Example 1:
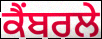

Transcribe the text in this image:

ਕੈਂਬਰਲੇ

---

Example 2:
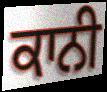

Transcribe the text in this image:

ਕਾਨੀ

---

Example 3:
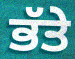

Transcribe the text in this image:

ਭੱਤੇ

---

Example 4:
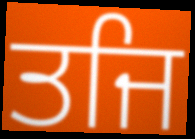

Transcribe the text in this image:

ਤਜਿ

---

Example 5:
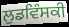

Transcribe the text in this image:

ਲੁਡਵਿੰਸਕੀ